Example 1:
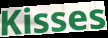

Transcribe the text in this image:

Kisses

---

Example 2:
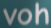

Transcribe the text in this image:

voh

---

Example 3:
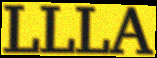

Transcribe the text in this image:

LLLA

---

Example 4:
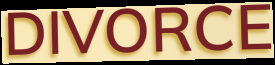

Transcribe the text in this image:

DIVORCE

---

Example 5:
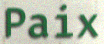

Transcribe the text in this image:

Paix